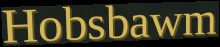
Hobsbawm